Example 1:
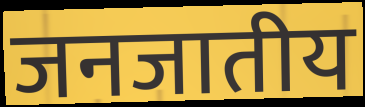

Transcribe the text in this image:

जनजातीय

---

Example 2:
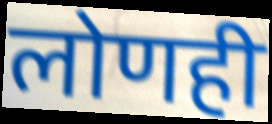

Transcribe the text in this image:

लोणही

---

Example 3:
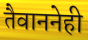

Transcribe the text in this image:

तैवाननेही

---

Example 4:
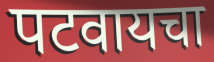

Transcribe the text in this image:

पटवायचा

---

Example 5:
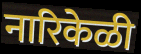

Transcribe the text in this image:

नारिकेळी